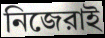
নিজেরাই